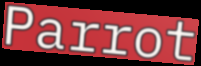
Parrot